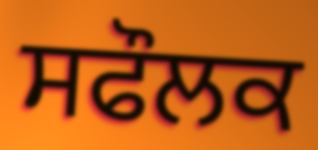
ਸਫੌਲਕ